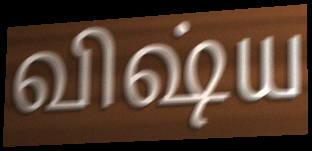
விஷ்ய